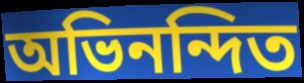
অভিনন্দিত